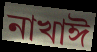
নাখাঈ